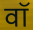
वॉ